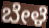
ಬೇಳೆ